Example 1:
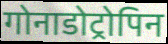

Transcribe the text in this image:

गोनाडोट्रोपिन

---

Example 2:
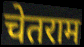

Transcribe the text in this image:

चेतराम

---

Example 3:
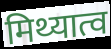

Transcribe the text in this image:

मिथ्‍यात्‍व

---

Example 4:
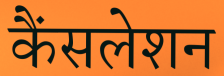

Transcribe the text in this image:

कैंसलेशन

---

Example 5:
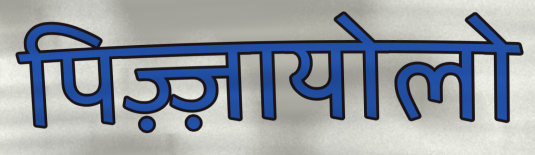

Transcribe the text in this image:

पिज़्ज़ायोलो